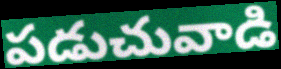
పడుచువాడి